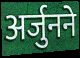
अर्जुनने